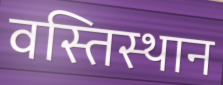
वस्तिस्थान